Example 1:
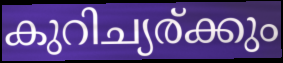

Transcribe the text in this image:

കുറിച്യര്ക്കും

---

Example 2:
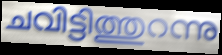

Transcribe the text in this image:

ചവിട്ടിത്തുറന്നു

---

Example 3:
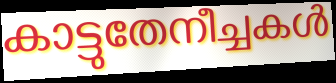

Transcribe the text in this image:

കാട്ടുതേനീച്ചകൾ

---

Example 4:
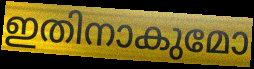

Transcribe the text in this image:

ഇതിനാകുമോ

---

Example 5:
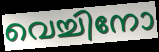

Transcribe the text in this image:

വെച്ചിനോ